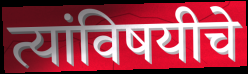
त्यांविषयीचे